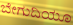
ಬೇಗುದಿಯೂ